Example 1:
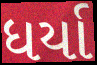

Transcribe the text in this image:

ધર્યા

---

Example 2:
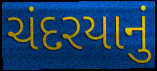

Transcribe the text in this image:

ચંદરયાનું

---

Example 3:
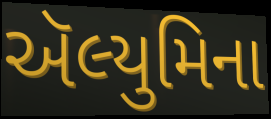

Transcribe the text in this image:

ઍલ્યુમિના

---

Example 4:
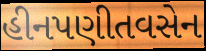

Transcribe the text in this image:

હીનપણીતવસેન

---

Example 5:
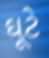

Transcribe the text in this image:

ઘૂટે